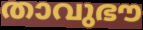
താവുഭൗ